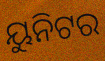
ୟୁନିଟର